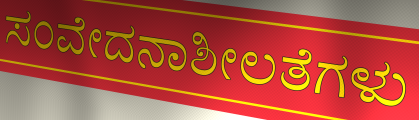
ಸಂವೇದನಾಶೀಲತೆಗಳು